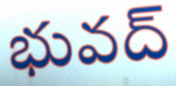
భువద్